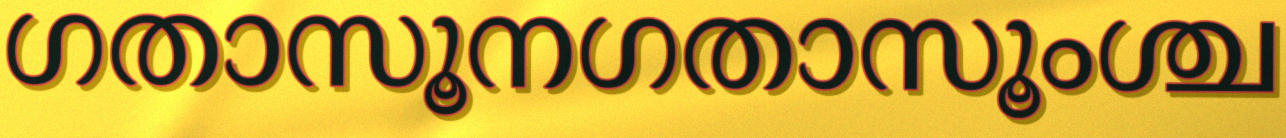
ഗതാസൂനഗതാസൂംശ്ച